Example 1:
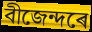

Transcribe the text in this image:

বীজেন্দৰে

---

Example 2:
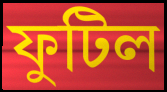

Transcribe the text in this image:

ফুটিল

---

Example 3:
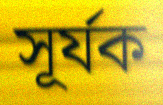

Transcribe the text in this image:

সূৰ্যক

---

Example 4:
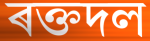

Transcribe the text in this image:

ৰক্তদল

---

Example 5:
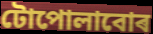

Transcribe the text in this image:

টোপোলাবোৰ